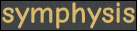
symphysis